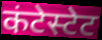
कंटेस्टेट